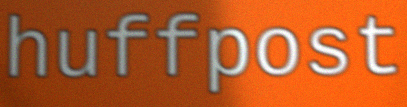
huffpost